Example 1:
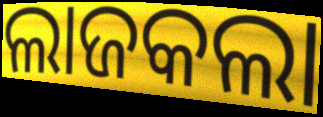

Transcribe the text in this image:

ଲାଜକଲା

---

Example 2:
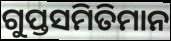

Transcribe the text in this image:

ଗୁପ୍ତସମିତିମାନ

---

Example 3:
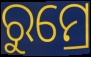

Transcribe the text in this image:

ରୁମ୍ରେ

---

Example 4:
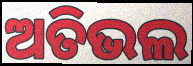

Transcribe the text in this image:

ଅତିଭଲ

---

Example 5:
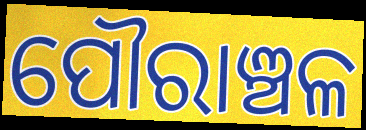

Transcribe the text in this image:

ପୌରାଞ୍ଚଳ